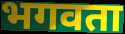
भगवता